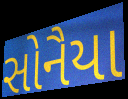
સોનૈયા